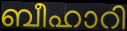
ബീഹാറി